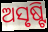
ଅସୃଷ୍ଟି